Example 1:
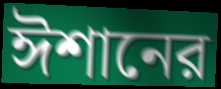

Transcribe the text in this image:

ঈশানের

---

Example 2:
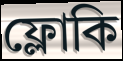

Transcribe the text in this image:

ফ্লোকি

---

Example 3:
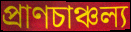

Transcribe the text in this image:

প্রাণচাঞ্চল্য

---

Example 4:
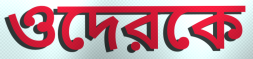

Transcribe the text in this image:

ওদেরকে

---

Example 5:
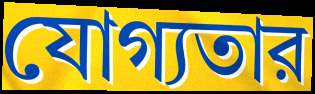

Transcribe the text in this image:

যোগ্যতার